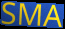
SMA